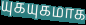
யுகயுகமாக